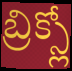
బ్రిక్స్లో